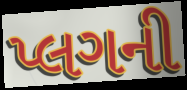
પ્લગની